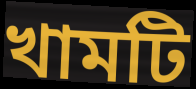
খামটি